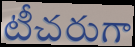
టీచరుగా